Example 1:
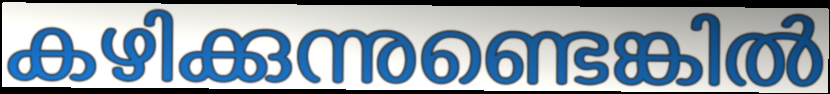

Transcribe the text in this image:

കഴിക്കുന്നുണ്ടെങ്കിൽ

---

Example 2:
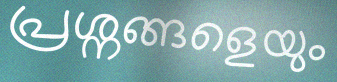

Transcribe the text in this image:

പ്രശ്നങ്ങളെയും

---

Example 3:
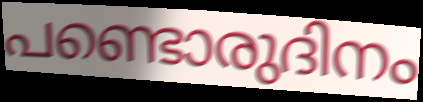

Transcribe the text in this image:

പണ്ടൊരുദിനം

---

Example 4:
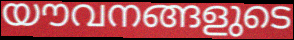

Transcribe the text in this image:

യൗവനങ്ങളുടെ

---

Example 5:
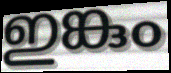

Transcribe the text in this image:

ഇങ്കും